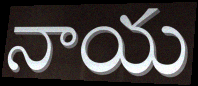
నాయ